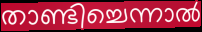
താണ്ടിച്ചെന്നാൽ